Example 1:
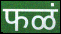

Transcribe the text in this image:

फळं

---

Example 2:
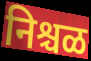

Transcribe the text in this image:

निश्चळ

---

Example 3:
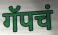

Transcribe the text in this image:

गॅपचं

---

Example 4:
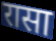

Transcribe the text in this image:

रासा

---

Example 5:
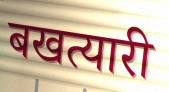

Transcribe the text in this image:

बखत्यारी